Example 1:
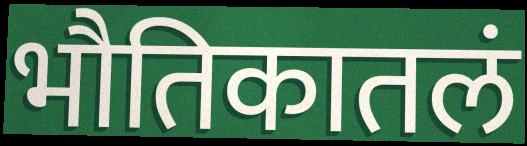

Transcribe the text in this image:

भौतिकातलं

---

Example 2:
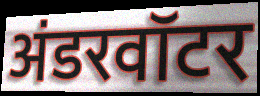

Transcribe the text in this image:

अंडरवॉटर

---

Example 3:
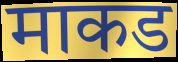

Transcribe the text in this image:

माकड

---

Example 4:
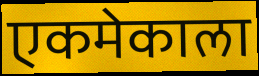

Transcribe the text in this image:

एकमेकाला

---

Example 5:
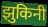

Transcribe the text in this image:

झुकिनी